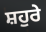
ਸ਼ਹੁਰੇ